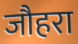
जौहरा